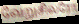
வேறுசிலரோ